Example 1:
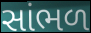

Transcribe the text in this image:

સાંભળ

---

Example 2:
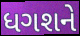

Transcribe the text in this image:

ધગશને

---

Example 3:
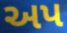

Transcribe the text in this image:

અપ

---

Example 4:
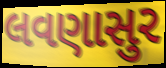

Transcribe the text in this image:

લવણાસુર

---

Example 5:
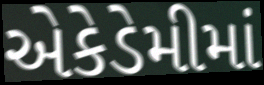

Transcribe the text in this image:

એકેડેમીમાં